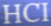
HCI